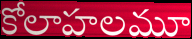
కోలాహలమూ